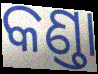
କଣ୍ଡା